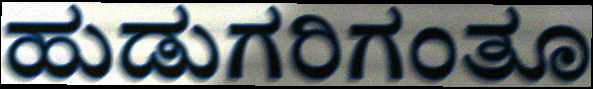
ಹುಡುಗರಿಗಂತೂ